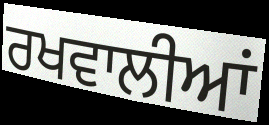
ਰਖਵਾਲੀਆਂ